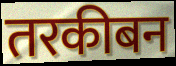
तरकीबन